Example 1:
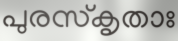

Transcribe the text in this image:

പുരസ്കൃതാഃ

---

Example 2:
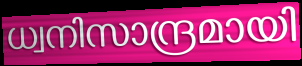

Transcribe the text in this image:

ധ്വനിസാന്ദ്രമായി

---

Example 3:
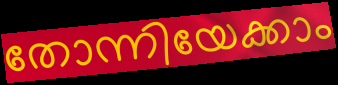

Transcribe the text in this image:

തോന്നിയേക്കാം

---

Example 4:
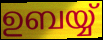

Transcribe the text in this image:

ഉബയ്യ്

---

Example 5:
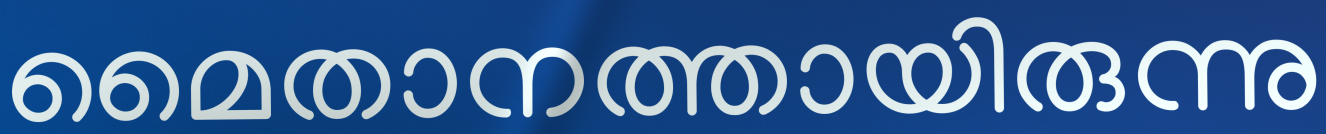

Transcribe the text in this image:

മൈതാനത്തായിരുന്നു